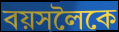
বয়সলৈকে